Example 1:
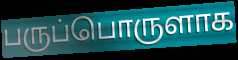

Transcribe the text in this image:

பருப்பொருளாக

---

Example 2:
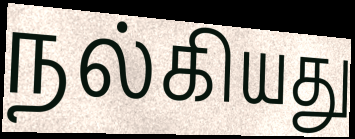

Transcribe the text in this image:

நல்கியது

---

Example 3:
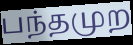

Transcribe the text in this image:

பந்தமுற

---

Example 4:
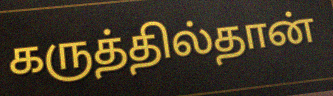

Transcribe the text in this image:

கருத்தில்தான்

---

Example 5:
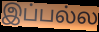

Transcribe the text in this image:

இப்பல்ல